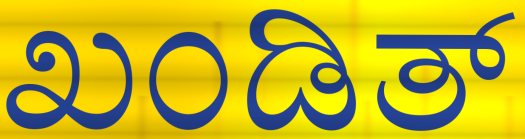
ಖಂಡಿತ್